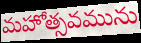
మహోత్సవమును